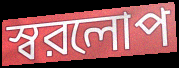
স্বরলোপ